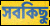
সবকিছু